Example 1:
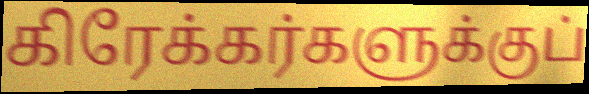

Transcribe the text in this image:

கிரேக்கர்களுக்குப்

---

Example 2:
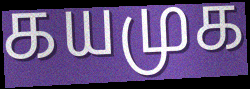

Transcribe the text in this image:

கயமுக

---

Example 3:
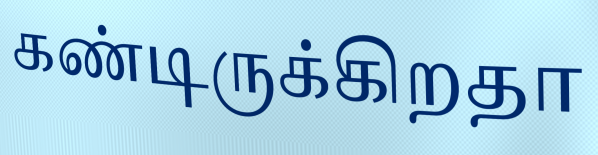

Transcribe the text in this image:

கண்டிருக்கிறதா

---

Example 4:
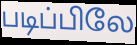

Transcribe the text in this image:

படிப்பிலே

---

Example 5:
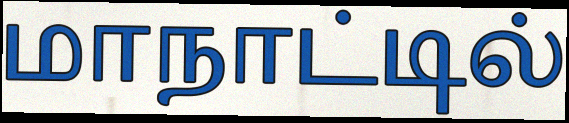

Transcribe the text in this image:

மாநாட்டில்